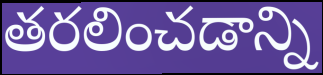
తరలించడాన్ని